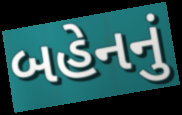
બહેનનું